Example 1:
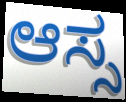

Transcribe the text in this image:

ಆಸ್ಸ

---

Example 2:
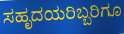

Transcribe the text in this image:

ಸಹೃದಯರಿಬ್ಬರಿಗೂ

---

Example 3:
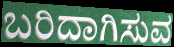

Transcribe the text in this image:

ಬರಿದಾಗಿಸುವ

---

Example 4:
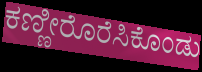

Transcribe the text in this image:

ಕಣ್ಣೀರೊರೆಸಿಕೊಂಡು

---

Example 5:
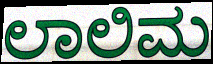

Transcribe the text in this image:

ಲಾಲಿಮ